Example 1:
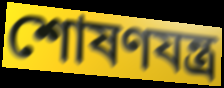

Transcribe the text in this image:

শোষণযন্ত্র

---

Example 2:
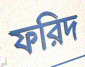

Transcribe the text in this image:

ফরিদ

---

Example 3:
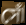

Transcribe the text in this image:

সোঁ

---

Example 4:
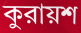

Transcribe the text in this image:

কুরায়শ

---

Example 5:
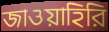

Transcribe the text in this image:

জাওয়াহিরি